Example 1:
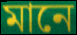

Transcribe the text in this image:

মানে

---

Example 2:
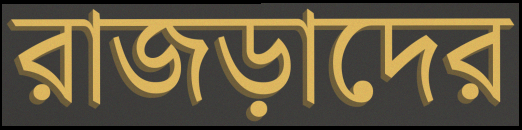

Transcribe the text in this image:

রাজড়াদের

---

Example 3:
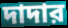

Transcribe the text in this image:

দাদার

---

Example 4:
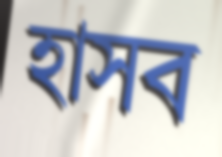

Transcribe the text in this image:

হাসব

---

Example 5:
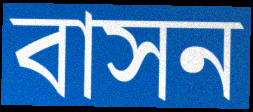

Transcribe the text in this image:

বাসন